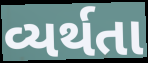
વ્યર્થતા